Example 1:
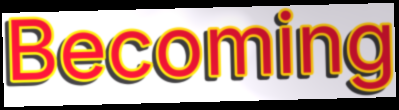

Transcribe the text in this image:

Becoming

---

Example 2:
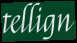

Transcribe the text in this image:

tellign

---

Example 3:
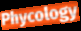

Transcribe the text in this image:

Phycology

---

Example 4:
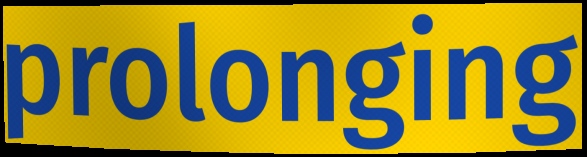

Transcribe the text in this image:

prolonging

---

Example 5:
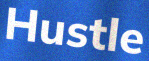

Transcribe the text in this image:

Hustle